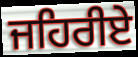
ਜਹਿਰੀਏ